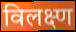
विलक्ष्ण